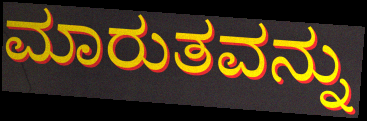
ಮಾರುತವನ್ನು